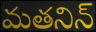
మతనిన్